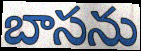
బాసను